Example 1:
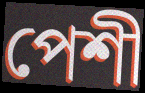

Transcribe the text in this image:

পেশী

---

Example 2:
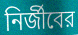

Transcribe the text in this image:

নির্জীবের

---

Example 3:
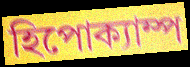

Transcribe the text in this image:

হিপোক্যাম্প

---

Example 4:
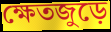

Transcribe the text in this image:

ক্ষেতজুড়ে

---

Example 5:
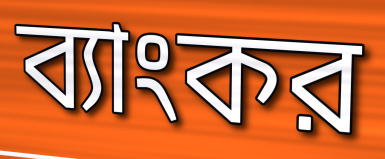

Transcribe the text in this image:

ব্যাংকর